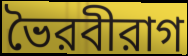
ভৈরবীরাগ